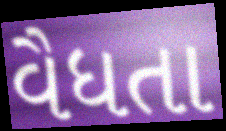
વૈધતા